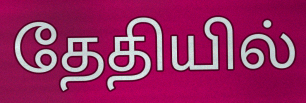
தேதியில்